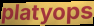
platyops